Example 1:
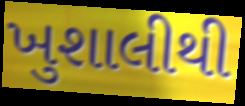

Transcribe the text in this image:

ખુશાલીથી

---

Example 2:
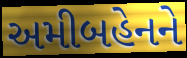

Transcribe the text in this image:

અમીબહેનને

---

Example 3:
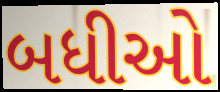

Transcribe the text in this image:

બધીઓ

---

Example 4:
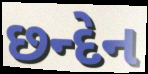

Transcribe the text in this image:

છન્દેન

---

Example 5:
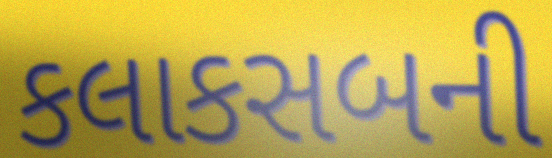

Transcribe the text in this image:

કલાકસબની